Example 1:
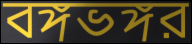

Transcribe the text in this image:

বঙ্গভঙ্গর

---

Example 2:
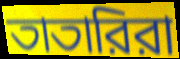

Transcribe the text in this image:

তাতারিরা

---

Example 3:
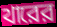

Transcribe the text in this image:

থারের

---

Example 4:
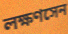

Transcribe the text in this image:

লক্ষণসেন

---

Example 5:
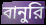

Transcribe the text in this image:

বানুরি